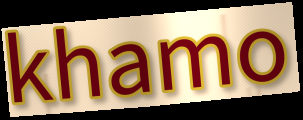
khamo